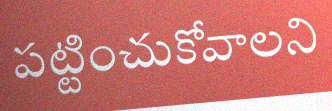
పట్టించుకోవాలని